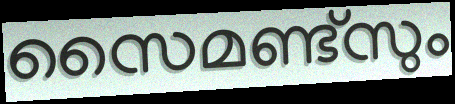
സൈമണ്ട്സും